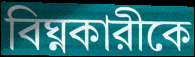
বিঘ্নকারীকে